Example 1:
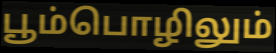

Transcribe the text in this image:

பூம்பொழிலும்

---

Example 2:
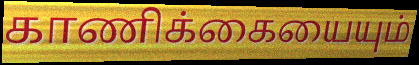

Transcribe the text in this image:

காணிக்கையையும்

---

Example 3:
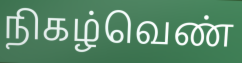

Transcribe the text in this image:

நிகழ்வெண்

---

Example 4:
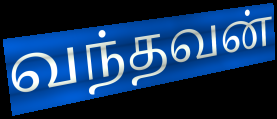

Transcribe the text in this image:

வந்தவன்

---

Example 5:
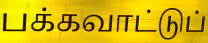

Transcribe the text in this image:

பக்கவாட்டுப்